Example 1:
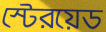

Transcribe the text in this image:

স্টেরয়েড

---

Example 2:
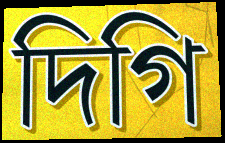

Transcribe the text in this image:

দিগি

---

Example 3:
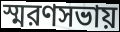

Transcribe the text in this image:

স্মরণসভায়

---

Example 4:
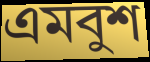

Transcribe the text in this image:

এমবুশ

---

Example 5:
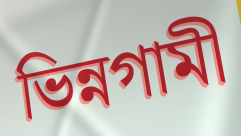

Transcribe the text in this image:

ভিন্নগামী